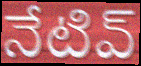
నేటివ్